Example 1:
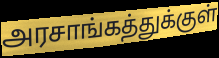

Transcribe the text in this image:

அரசாங்கத்துக்குள்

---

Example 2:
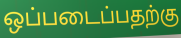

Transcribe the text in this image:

ஒப்படைப்பதற்கு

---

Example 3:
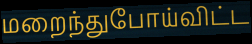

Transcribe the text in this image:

மறைந்துபோய்விட்ட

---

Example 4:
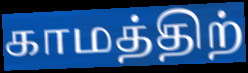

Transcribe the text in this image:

காமத்திற்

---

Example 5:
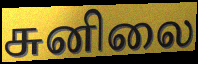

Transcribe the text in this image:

சுனிலை